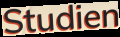
Studien